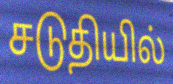
சடுதியில்